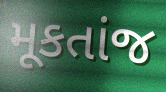
મૂકતાંજ